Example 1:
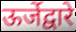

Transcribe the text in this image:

ऊर्जेद्वारे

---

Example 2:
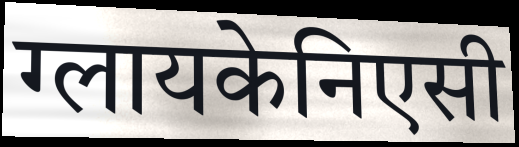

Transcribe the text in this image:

ग्लायकेनिएसी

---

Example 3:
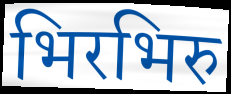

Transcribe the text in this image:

भिरभिरु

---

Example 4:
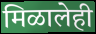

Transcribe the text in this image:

मिळालेही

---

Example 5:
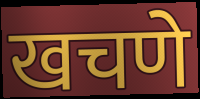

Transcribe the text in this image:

खचणे